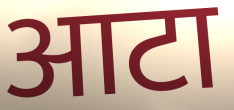
आटा